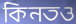
কিনতও